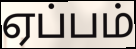
ஏப்பம்